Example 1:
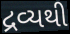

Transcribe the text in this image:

દ્રવ્યથી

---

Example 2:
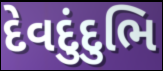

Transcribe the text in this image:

દેવદુંદુભિ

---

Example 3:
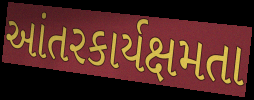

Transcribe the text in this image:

આંતરકાર્યક્ષમતા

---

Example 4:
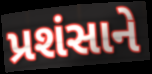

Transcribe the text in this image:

પ્રશંસાને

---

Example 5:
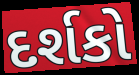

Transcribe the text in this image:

દર્શકો